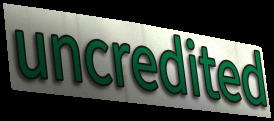
uncredited